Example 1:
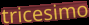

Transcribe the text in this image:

tricesimo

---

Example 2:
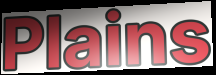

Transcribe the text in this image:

Plains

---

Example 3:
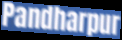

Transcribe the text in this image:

Pandharpur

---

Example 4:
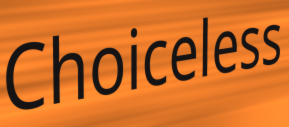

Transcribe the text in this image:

Choiceless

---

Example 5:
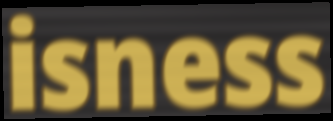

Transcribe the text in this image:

isness